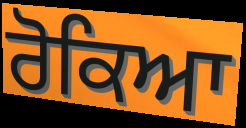
ਰੋਕਿਆ